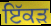
ਇੱਕੜ